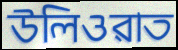
উলিওৱাত